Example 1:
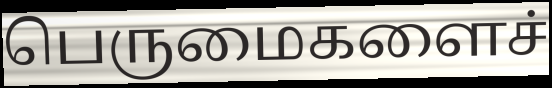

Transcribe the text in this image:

பெருமைகளைச்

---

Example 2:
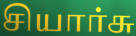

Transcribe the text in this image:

சியார்சு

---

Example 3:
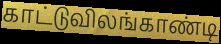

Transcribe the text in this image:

காட்டுவிலங்காண்டி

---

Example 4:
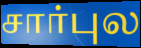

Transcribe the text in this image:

சார்புல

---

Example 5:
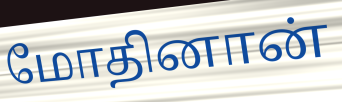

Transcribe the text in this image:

மோதினான்